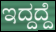
ಇದ್ದದ್ದೆ